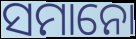
ସମାନୋ